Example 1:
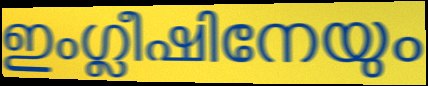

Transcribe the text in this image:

ഇംഗ്ലീഷിനേയും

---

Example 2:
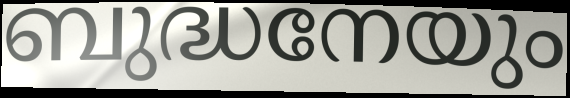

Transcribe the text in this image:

ബുദ്ധനേയും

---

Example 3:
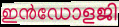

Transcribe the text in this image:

ഇൻഡോളജി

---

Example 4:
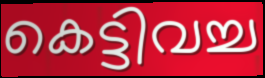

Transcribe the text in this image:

കെട്ടിവച്ച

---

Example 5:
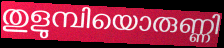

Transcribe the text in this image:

തുളുമ്പിയൊരുണ്ണി